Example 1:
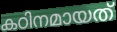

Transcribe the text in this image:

കഠിനമായത്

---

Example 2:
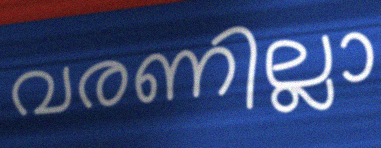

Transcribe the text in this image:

വരണില്ലാ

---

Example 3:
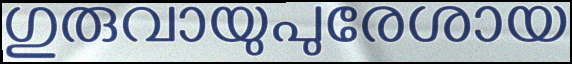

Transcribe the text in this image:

ഗുരുവായുപുരേശായ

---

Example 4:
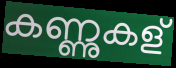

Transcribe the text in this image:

കണ്ണുകള്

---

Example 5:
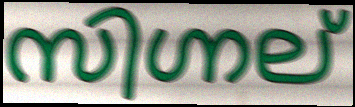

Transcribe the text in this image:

സിഗ്നല്